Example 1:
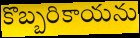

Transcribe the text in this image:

కొబ్బరికాయను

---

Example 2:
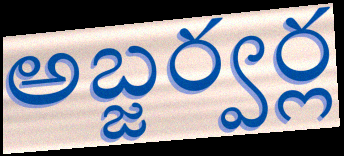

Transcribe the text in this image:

అబ్జర్వర్ల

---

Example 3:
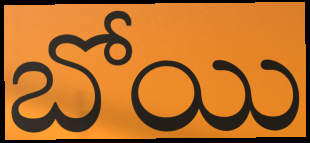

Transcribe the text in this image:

బోయి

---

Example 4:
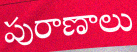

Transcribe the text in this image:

పురాణాలు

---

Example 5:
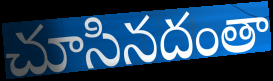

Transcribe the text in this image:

చూసినదంతా